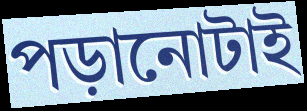
পড়ানোটাই